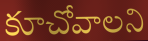
కూచోవాలని